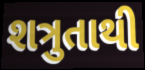
શત્રુતાથી